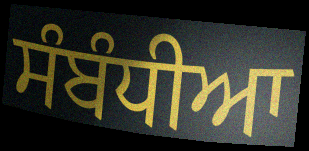
ਸੰਬੰਧੀਆ